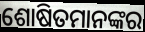
ଶୋଷିତମାନଙ୍କର